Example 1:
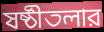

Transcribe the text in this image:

ষষ্ঠীতলার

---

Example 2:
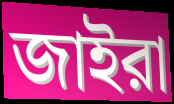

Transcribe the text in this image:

জাইরা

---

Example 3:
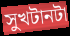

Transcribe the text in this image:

সুখটানটা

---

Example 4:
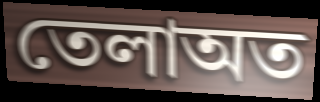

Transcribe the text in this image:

তেলাঅত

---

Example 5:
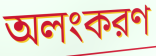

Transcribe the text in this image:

অলংকরণ